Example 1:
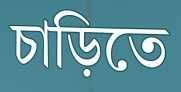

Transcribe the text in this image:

চাড়িতে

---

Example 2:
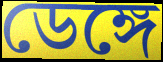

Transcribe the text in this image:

ডেঙ্গে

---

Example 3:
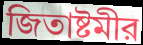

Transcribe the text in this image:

জিতাষ্টমীর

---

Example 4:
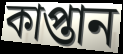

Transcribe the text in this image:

কাপ্তান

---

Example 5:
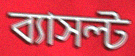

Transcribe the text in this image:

ব্যাসল্ট